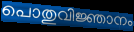
പൊതുവിജ്ഞാനം